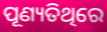
ପୂଣ୍ୟତିଥିରେ